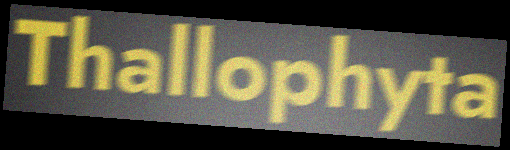
Thallophyta